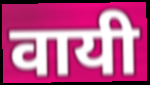
वायी